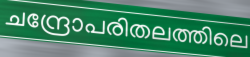
ചന്ദ്രോപരിതലത്തിലെ